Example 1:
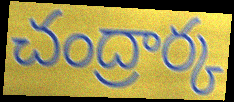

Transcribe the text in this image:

చంద్రార్క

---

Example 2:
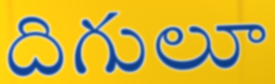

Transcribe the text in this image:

దిగులూ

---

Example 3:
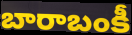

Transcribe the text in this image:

బారాబంకీ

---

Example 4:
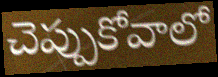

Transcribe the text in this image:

చెప్పుకోవాలో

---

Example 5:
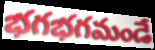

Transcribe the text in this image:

భగభగమండే